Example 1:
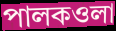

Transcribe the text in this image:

পালকওলা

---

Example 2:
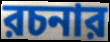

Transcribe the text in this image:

রচনার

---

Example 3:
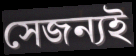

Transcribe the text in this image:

সেজন্যই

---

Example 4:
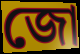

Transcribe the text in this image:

জো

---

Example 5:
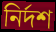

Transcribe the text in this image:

নির্দশ